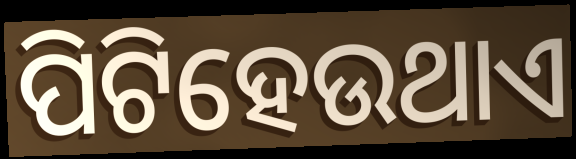
ପିଟିହେଉଥାଏ